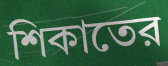
শিকাতের